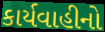
કાર્યવાહીનો